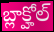
బ్లాక్హోల్